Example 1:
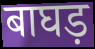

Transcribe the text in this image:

बाघड़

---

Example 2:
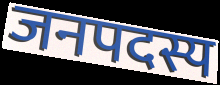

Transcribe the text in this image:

जनपदस्य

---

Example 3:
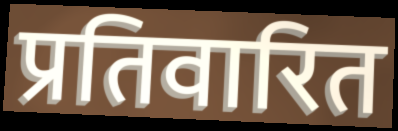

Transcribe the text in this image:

प्रतिवारित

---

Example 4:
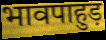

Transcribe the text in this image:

भावपाहुड़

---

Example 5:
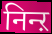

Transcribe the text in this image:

निन्ऱ